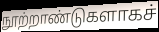
நூற்றாண்டுகளாகச்